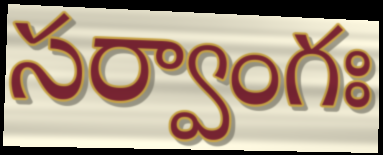
సర్వాంగః